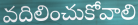
వదిలించుకోవాలి